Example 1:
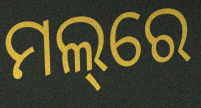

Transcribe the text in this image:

ମଲ୍‌ରେ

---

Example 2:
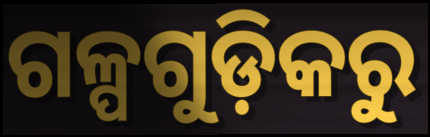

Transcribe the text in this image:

ଗଳ୍ପଗୁଡ଼ିକରୁ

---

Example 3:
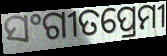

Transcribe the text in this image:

ସଂଗୀତପ୍ରେମୀ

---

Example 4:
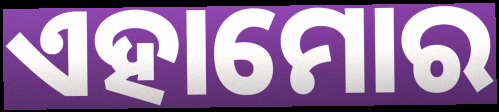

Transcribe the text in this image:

ଏହାମୋର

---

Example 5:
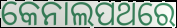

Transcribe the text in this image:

କେନାଲପଥରେ